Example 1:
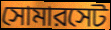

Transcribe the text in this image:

সোমারসেট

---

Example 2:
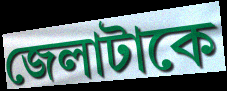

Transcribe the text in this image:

জেলাটাকে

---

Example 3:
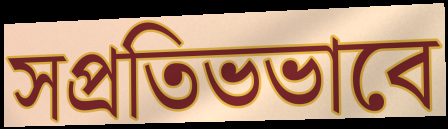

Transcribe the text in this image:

সপ্রতিভভাবে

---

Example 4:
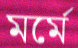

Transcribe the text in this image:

মর্মে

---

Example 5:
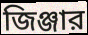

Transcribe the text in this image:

জিঞ্জার